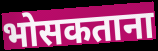
भोसकताना